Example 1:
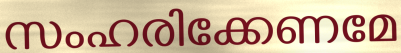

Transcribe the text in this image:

സംഹരിക്കേണമേ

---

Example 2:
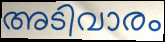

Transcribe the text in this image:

അടിവാരം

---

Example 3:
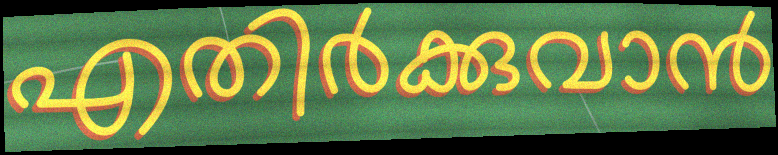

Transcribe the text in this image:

എതിർക്കുവാൻ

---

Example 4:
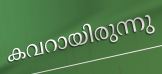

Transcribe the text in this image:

കവറായിരുന്നു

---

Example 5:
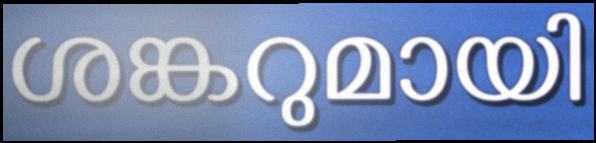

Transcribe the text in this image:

ശങ്കറുമായി